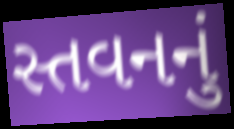
સ્તવનનું